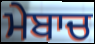
ਮੇਬਾਚ